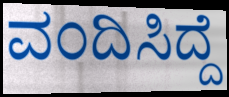
ವಂದಿಸಿದ್ದೆ